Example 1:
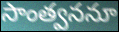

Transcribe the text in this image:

సాంత్వననూ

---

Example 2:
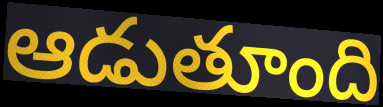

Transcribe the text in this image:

ఆడుతూంది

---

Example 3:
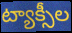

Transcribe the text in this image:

ట్యాక్సీల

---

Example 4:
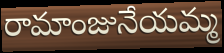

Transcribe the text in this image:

రామాంజునేయమ్మ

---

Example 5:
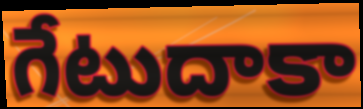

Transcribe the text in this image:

గేటుదాకా